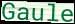
Gaule